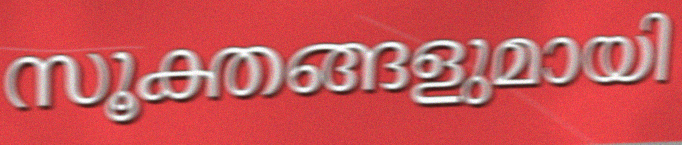
സൂക്തങ്ങളുമായി